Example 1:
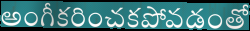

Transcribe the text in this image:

అంగీకరించకపోవడంతో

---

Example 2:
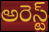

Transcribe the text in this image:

అరెస్ట్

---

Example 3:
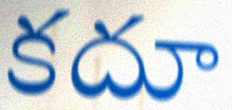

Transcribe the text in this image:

కదూ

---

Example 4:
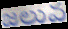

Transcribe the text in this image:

జలువ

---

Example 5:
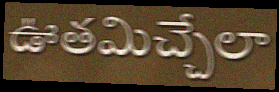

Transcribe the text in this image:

ఊతమిచ్చేలా